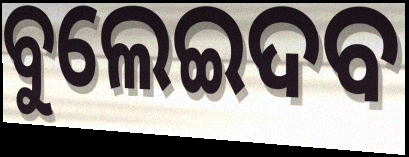
ବୁଲେଇଦବ